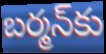
బర్మన్‌కు